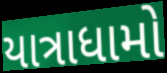
યાત્રાધામો